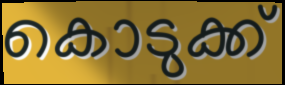
കൊടുക്ക്